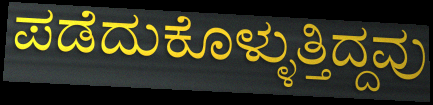
ಪಡೆದುಕೊಳ್ಳುತ್ತಿದ್ದವು